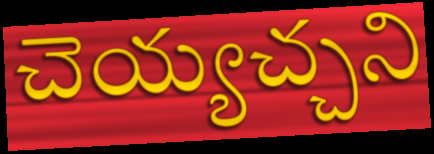
చెయ్యచ్చని